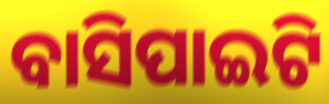
ବାସିପାଇଟି